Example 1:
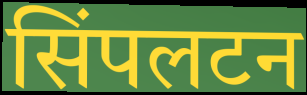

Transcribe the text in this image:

सिंपलटन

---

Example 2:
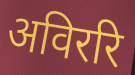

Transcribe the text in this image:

अविररि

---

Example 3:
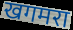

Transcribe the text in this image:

खगमरा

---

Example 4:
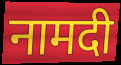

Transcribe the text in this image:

नामदी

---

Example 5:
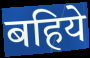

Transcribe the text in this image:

बहिये